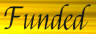
Funded